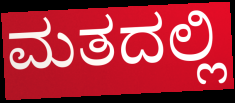
ಮತದಲ್ಲಿ